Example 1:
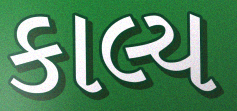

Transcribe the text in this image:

કાલ્ય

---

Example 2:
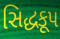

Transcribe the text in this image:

સિદ્ધકૂપ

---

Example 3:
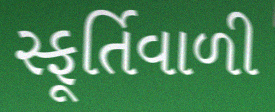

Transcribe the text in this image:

સ્ફૂર્તિવાળી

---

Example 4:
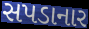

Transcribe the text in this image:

સપડાનાર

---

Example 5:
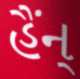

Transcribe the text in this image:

હૈંન્